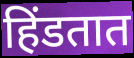
हिंडतात